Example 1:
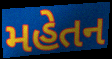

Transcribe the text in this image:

મહેતન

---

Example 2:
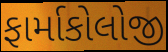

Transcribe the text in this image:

ફાર્માકોલોજી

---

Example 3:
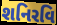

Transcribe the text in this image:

શનિરવિ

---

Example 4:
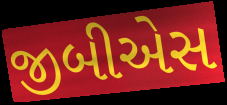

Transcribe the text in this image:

જીબીએસ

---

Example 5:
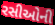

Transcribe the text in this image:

રસીઓની